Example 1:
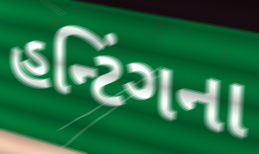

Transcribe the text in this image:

હન્ટિંગના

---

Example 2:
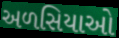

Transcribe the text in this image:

અળસિયાઓ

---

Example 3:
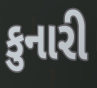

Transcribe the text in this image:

કુનારી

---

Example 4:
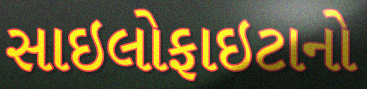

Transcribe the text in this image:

સાઇલોફાઇટાનો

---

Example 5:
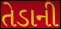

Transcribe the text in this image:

તેડાની